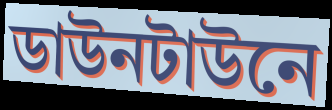
ডাউনটাউনে